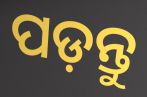
ପଡ଼ନ୍ତୁ